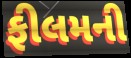
ફીલમની